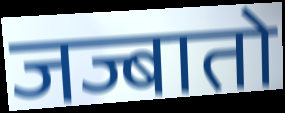
जज्बातो